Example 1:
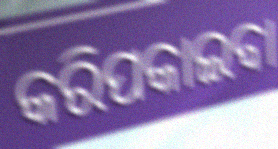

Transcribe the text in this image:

କରିପକାଇବା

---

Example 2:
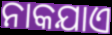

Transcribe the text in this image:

ନାକଯାଏ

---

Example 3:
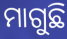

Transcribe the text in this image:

ମାଗୁଛି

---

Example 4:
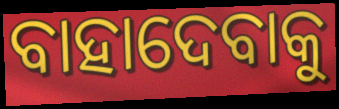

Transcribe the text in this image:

ବାହାଦେବାକୁ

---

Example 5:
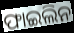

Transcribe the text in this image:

ଫାଇଲିନ